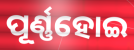
ପୂର୍ଣ୍ଣହୋଇ